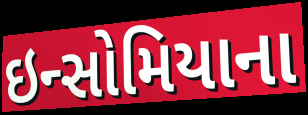
ઇન્સોમિયાના